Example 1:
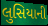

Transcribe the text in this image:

લુસિયાની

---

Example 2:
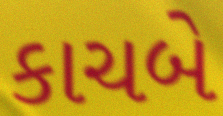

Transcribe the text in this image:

કાચબે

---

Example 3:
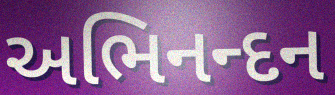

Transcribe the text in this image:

અભિનન્દન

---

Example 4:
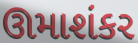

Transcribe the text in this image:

ઊમાશંકર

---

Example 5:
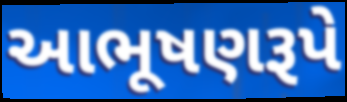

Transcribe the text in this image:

આભૂષણરૂપે